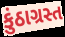
કુંઠાગ્રસ્ત